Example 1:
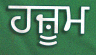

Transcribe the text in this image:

ਹਜ਼ੂਮ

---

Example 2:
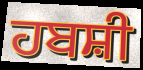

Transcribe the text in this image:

ਹਬਸ਼ੀ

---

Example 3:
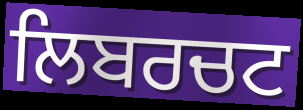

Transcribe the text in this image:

ਲਿਬਰਚਟ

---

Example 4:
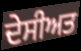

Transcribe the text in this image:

ਦੇਸੀਅਤ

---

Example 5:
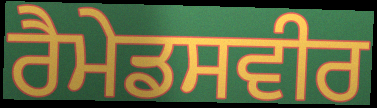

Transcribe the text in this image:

ਰੈਮੇਡਸਵੀਰ